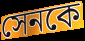
সেনকে